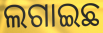
ଲଗାଇଛ